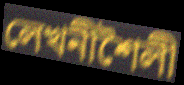
লেখনীশৈলী